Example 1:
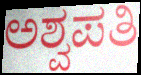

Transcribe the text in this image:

ಅಶ್ವಪತಿ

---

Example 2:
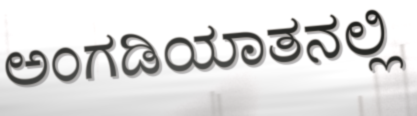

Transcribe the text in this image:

ಅಂಗಡಿಯಾತನಲ್ಲಿ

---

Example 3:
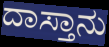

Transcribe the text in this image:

ದಾಸ್ತಾನು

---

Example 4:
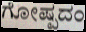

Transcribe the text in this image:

ಗೋಷ್ಪದಂ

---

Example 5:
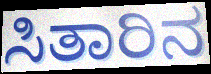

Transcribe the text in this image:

ಸಿತಾರಿನ